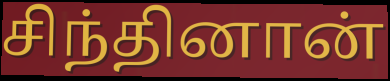
சிந்தினான்